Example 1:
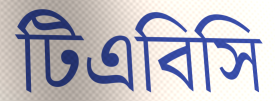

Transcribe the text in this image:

টিএবিসি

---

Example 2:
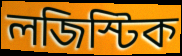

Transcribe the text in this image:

লজিস্টিক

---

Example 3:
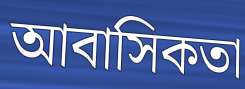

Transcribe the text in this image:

আবাসিকতা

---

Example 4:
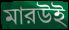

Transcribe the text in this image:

মারউই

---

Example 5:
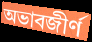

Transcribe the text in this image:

অভাবজীর্ণ